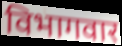
विभागवार